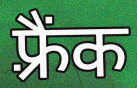
फ़्रैंक